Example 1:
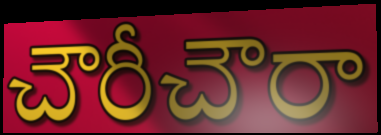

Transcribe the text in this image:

చౌరీచౌరా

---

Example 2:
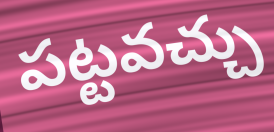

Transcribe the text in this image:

పట్టవచ్చు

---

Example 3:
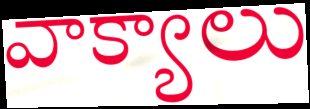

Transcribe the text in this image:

వాక్యాలు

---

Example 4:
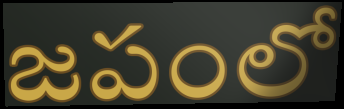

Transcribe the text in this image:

జపంలో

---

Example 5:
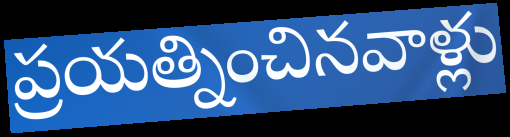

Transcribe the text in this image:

ప్రయత్నించినవాళ్లు